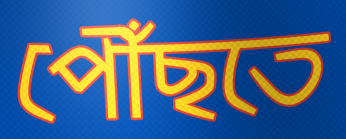
পৌঁছতে